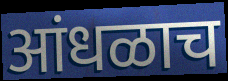
आंधळाच